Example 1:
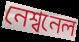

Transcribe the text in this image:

নেশ্বনেল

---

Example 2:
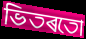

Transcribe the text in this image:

ভিতৰতো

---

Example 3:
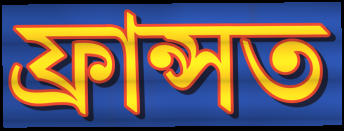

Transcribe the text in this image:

ফ্ৰান্সত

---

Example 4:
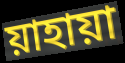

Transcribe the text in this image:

য়াহায়া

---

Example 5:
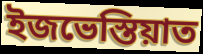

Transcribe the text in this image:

ইজভেস্তিয়াত